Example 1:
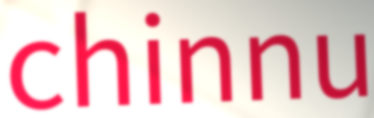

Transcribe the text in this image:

chinnu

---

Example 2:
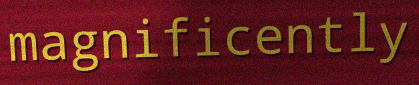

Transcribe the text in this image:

magnificently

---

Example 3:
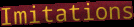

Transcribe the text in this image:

Imitations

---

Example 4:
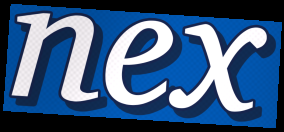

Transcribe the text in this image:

nex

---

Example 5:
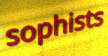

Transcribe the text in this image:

sophists